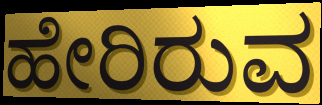
ಹೇರಿರುವ